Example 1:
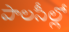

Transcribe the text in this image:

పాలసీల్లో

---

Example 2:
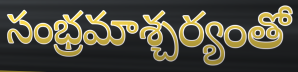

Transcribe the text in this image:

సంభ్రమాశ్చర్యంతో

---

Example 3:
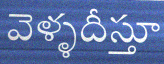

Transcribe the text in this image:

వెళ్ళదీస్తూ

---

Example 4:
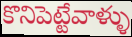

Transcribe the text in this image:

కొనిపెట్టేవాళ్ళు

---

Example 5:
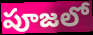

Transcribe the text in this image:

పూజలో